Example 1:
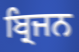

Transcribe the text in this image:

ਬ੍ਰਿਜਨ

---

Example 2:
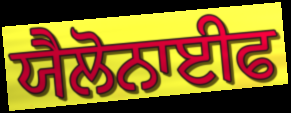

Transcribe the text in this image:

ਯੈਲੋਨਾਈਫ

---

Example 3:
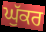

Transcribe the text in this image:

ਘੁੱਕਰ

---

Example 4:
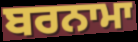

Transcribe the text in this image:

ਬਰਨਾਮਾ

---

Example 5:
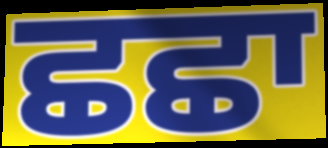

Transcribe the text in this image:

ਛਛਾ